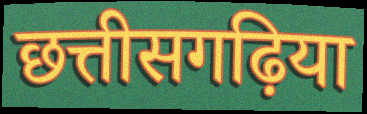
छत्तीसगढ़िया